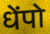
धेंपो